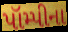
પૉમ્પીના